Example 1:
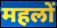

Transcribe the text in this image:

महलों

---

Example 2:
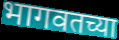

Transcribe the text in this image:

भागवतच्या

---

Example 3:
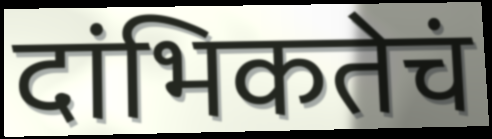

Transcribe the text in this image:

दांभिकतेचं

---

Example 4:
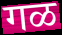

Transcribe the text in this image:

गळ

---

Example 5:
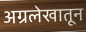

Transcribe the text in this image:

अग्रलेखातून